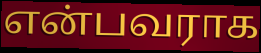
என்பவராக